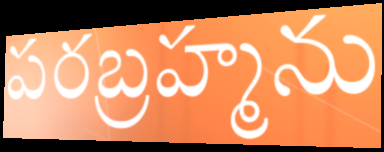
పరబ్రహ్మను